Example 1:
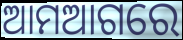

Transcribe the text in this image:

ଆମଆଗରେ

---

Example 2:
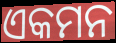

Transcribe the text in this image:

ଏକମନ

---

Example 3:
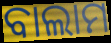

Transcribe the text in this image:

ବାଲାମ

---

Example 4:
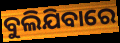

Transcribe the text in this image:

ବୁଲିଯିବାରେ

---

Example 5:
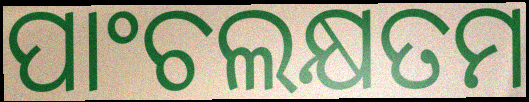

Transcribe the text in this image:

ପାଂଚଲକ୍ଷତମ